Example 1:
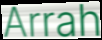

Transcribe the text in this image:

Arrah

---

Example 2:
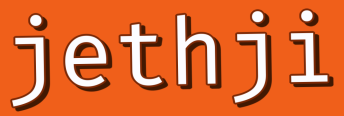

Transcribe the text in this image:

jethji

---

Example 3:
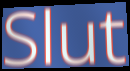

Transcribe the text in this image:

Slut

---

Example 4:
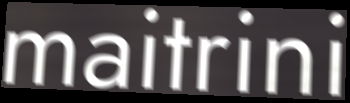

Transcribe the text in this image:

maitrini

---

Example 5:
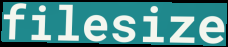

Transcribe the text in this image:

filesize